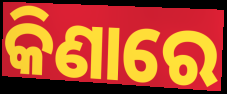
କିଣାରେ